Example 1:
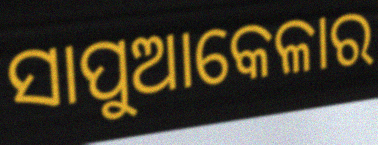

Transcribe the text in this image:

ସାପୁଆକେଳାର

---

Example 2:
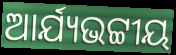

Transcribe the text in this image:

ଆର୍ଯ୍ୟଭଟ୍ଟୀୟ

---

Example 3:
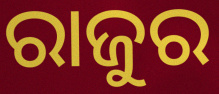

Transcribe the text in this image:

ରାଜୁର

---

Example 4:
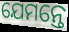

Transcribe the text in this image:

ଯେମନ୍ତେ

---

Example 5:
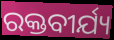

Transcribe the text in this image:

ରକ୍ତବୀର୍ଯ୍ୟ